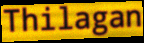
Thilagan